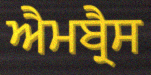
ਐਮਬ੍ਰੈਸ